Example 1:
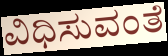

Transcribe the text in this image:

ವಿಧಿಸುವಂತೆ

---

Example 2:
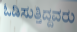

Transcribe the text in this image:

ಓಡಿಸುತ್ತಿದ್ದವರು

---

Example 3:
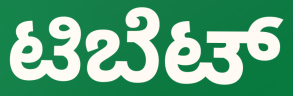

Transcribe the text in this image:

ಟಿಬೆಟ್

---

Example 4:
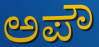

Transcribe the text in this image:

ಅಪೌ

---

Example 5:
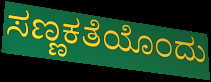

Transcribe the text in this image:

ಸಣ್ಣಕತೆಯೊಂದು